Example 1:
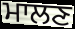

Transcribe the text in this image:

ਮਾਲਣ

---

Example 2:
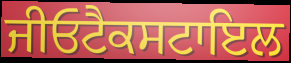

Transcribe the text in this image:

ਜੀਓਟੈਕਸਟਾਇਲ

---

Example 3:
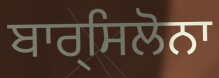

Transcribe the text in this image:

ਬਾਰ੍ਸਿਲੋਨਾ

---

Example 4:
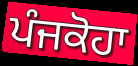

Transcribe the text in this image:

ਪੰਜਕੋਹਾ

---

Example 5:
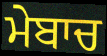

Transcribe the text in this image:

ਮੇਬਾਚ